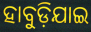
ହାବୁଡ଼ିଯାଇ